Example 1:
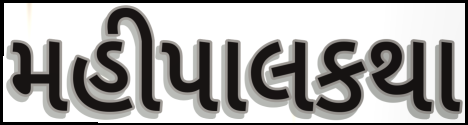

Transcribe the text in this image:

મહીપાલકથા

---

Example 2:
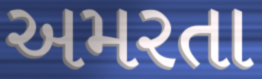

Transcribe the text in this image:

અમરતા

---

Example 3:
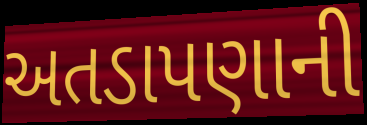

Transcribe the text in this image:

અતડાપણાની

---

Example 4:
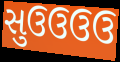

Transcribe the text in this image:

સુઉઉઉઉ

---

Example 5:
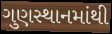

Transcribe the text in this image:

ગુણસ્થાનમાંથી